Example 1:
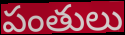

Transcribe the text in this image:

పంతులు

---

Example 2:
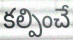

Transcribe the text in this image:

కల్పించే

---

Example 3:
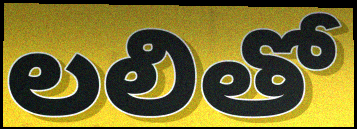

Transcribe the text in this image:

లలితో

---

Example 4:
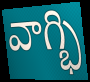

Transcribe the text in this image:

వాగ్భి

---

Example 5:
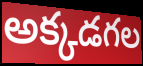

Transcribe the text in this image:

అక్కడగల